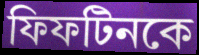
ফিফটিনকে